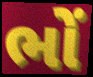
ભોં